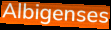
Albigenses